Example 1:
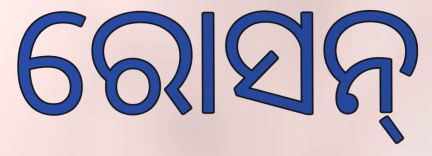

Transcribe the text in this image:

ରୋସନ୍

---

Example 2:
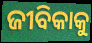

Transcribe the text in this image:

ଜୀବିକାକୁ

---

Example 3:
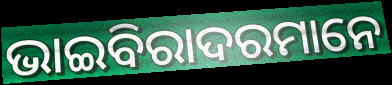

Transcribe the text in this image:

ଭାଇବିରାଦରମାନେ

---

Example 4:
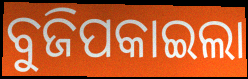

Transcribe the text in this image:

ବୁଜିପକାଇଲା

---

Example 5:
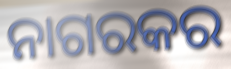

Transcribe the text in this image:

ନାଗରକର